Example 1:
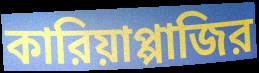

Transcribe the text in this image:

কারিয়াপ্পাজির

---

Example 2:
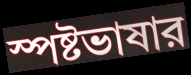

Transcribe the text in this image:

স্পষ্টভাষার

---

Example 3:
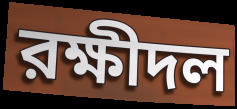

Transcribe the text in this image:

রক্ষীদল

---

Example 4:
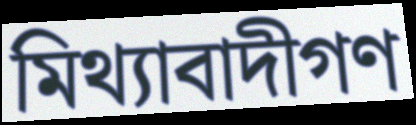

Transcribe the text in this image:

মিথ্যাবাদীগণ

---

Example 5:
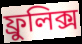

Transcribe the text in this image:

ফ্রুলিক্স